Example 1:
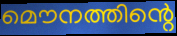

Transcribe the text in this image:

മൌനത്തിന്റെ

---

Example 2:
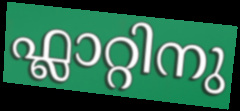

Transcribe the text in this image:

ഫ്ലാറ്റിനു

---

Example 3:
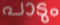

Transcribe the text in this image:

പാടും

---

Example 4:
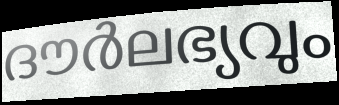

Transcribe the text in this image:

ദൗർലഭ്യവും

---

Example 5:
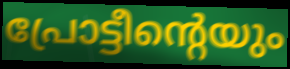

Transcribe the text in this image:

പ്രോട്ടീന്റെയും